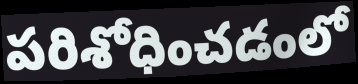
పరిశోధించడంలో